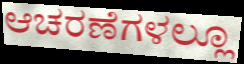
ಆಚರಣೆಗಳಲ್ಲೂ